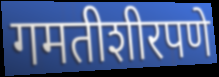
गमतीशीरपणे